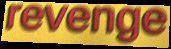
revenge